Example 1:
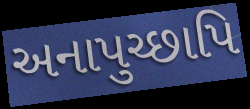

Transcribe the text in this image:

અનાપુચ્છાપિ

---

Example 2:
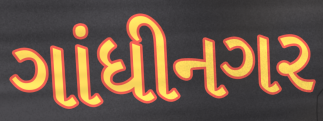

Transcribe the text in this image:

ગાંધીનગર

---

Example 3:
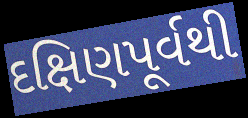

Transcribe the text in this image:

દક્ષિણપૂર્વથી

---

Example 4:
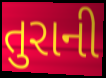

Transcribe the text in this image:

તુરાની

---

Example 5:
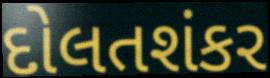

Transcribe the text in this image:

દોલતશંકર